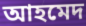
আহমেদ